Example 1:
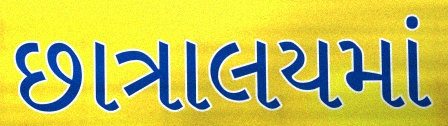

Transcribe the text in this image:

છાત્રાલયમાં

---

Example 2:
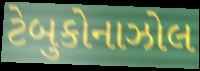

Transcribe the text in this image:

ટેબુકોનાઝોલ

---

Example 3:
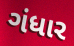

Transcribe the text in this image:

ગંધાર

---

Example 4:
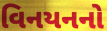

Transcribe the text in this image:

વિનયનનો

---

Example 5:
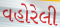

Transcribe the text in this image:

વહોરેલી